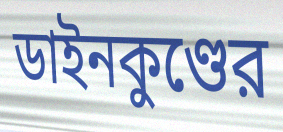
ডাইনকুণ্ডের